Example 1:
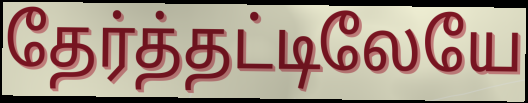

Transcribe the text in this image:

தேர்த்தட்டிலேயே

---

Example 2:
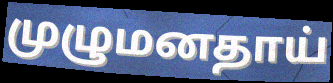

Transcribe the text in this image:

முழுமனதாய்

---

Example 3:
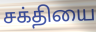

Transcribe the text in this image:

சக்தியை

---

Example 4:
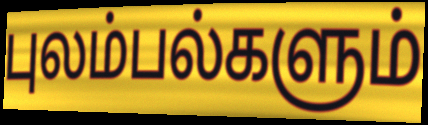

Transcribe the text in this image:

புலம்பல்களும்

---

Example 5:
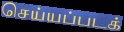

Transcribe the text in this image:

செய்யப்படக்